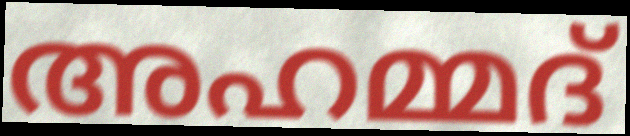
അഹമ്മദ്